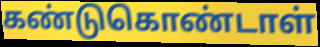
கண்டுகொண்டாள்